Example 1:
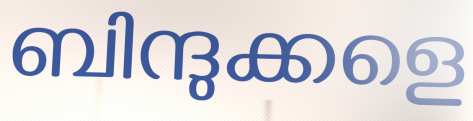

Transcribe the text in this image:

ബിന്ദുക്കളെ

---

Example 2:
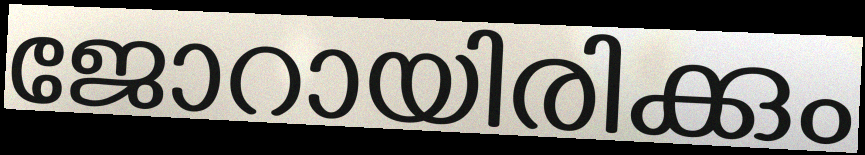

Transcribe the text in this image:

ജോറായിരിക്കും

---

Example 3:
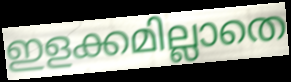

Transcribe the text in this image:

ഇളക്കമില്ലാതെ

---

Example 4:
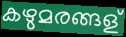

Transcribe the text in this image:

കഴുമരങ്ങള്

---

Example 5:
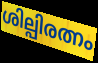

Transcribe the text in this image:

ശില്പിരത്നം